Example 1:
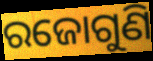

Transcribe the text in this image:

ରଜୋଗୁଣି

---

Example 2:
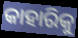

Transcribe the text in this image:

କାହାରିକୁ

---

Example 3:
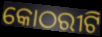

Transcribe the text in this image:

କୋଠରୀଟି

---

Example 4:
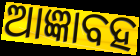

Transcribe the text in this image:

ଆଜ୍ଞାବହ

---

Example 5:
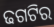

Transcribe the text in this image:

ଢଗଟିର